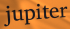
jupiter